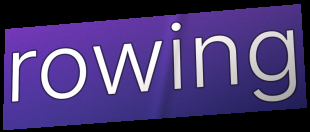
rowing